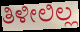
ತಿಳೀಲಿಲ್ಲ